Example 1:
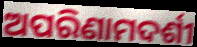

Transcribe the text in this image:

ଅପରିଣାମଦର୍ଶୀ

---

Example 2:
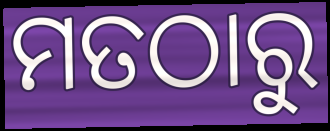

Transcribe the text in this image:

ମତଠାରୁ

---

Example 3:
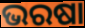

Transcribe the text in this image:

ଭରଷା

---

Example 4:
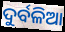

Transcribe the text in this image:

ଦୁର୍ବଳିଆ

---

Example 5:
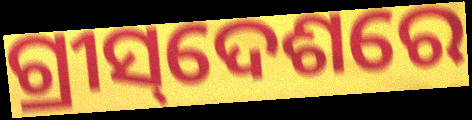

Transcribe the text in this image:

ଗ୍ରୀସ୍‌ଦେଶରେ